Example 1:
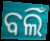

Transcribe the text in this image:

ବଲିଁ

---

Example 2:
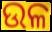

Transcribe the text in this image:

ଉଳ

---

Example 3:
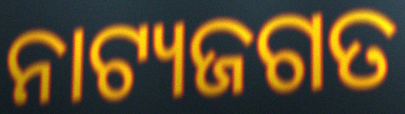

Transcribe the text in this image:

ନାଟ୍ୟଜଗତ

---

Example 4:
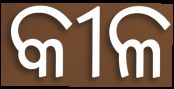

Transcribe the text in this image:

କୀଳ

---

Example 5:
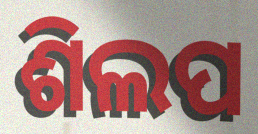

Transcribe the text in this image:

ଶିଲପ